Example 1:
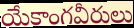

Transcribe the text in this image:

యేకాంగవీరులు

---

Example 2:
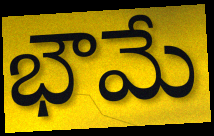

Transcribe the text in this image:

భౌమే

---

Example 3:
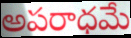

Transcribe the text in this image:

అపరాధమే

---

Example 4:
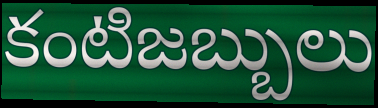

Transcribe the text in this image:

కంటిజబ్బులు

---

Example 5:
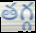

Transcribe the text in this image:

తగ్గ